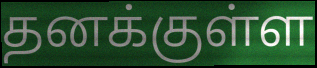
தனக்குள்ள